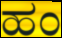
ಹಂ